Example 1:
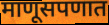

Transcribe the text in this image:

माणूसपणात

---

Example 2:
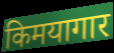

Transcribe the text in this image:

किमयागार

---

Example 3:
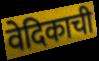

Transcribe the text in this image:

वेदिकाची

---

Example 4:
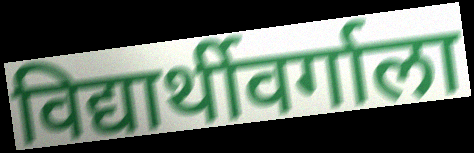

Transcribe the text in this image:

विद्यार्थीवर्गाला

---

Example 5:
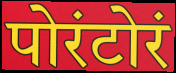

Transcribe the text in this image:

पोरंटोरं